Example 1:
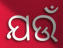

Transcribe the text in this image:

ଯଉଁ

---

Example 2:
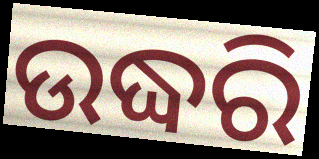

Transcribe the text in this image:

ଉଦ୍ଧରି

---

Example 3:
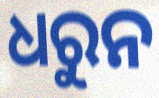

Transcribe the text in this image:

ଧରୁନ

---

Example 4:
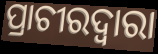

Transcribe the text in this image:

ପ୍ରାଚୀରଦ୍ୱାରା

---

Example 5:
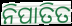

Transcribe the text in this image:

ନିପାତିତ